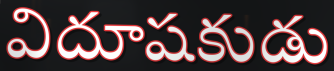
విదూషకుడు